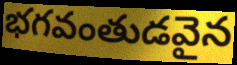
భగవంతుడవైన